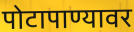
पोटापाण्यावर